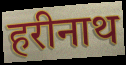
हरीनाथ